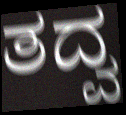
ತದ್ವ